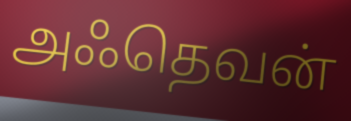
அஃதெவன்